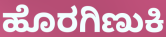
ಹೊರಗಿಣುಕಿ